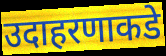
उदाहरणाकडे